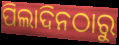
ପିଲାଦିନଠାରୁ